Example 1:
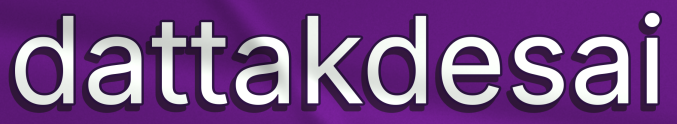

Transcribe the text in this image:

dattakdesai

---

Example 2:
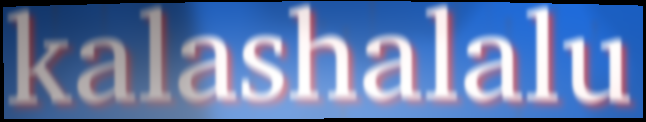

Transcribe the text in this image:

kalashalalu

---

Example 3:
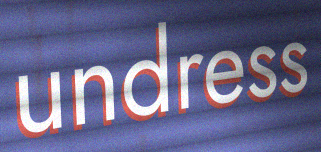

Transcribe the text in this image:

undress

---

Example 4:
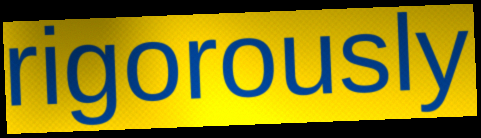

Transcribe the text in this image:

rigorously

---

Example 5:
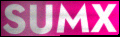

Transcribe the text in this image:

SUMX